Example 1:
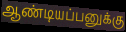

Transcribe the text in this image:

ஆண்டியப்பனுக்கு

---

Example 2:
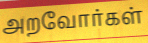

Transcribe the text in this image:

அறவோர்கள்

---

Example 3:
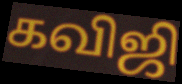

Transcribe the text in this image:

கவிஜி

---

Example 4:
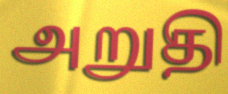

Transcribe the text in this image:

அறுதி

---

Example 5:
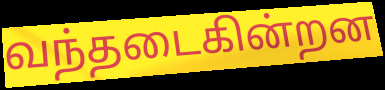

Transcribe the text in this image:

வந்தடைகின்றன